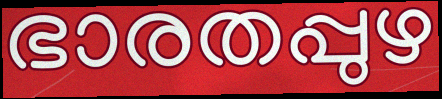
ഭാരതപ്പുഴ